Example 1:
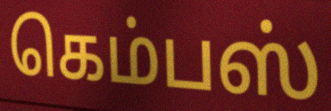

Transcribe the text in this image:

கெம்பஸ்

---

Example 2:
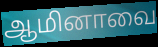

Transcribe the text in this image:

ஆமினாவை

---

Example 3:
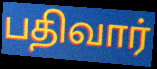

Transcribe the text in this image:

பதிவார்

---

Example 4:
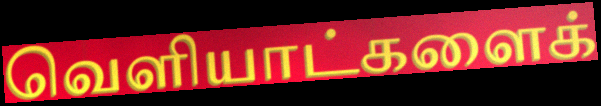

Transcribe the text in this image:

வெளியாட்களைக்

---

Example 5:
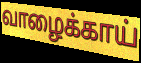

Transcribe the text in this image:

வாழைக்காய்